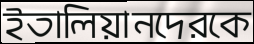
ইতালিয়ানদেরকে